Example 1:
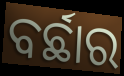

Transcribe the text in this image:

ବର୍ଛାର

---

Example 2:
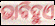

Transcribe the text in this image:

ଭାବିହୁଏ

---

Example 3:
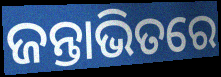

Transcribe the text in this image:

ଜନ୍ତାଭିତରେ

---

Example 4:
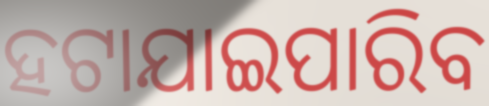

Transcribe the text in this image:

ହଟାଯାଇପାରିବ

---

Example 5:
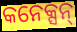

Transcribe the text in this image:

କନେକ୍ସନ୍